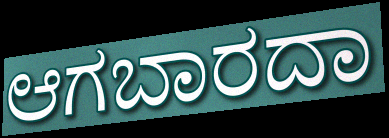
ಆಗಬಾರದಾ